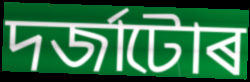
দৰ্জাটোৰ